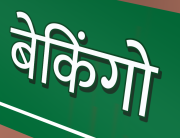
बेकिंगो